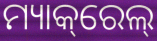
ମ୍ୟାକ୍‌ରେଲ୍